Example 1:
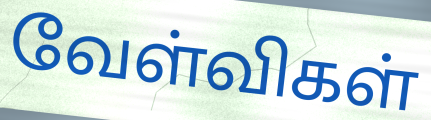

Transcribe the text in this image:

வேள்விகள்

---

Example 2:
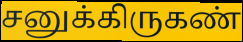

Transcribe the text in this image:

சனுக்கிருகண்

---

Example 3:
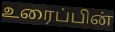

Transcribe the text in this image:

உரைப்பின்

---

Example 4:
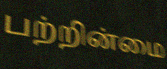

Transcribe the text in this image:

பற்றின்மை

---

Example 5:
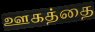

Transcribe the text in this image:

ஊகத்தை